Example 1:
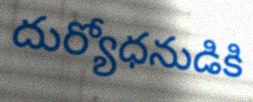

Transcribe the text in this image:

దుర్యోధనుడికి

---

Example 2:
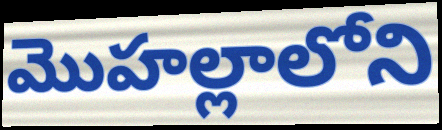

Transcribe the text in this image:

మొహల్లాలోని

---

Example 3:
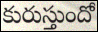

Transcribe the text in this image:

కురుస్తుందో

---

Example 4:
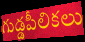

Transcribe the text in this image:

గుడ్డపీలికలు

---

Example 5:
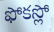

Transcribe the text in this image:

ఫోకస్లో